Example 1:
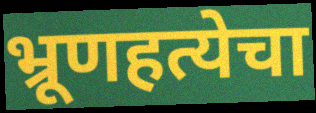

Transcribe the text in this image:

भ्रूणहत्येचा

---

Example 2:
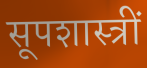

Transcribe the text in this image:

सूपशास्त्रीं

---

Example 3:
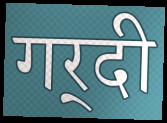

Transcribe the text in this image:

गर्दी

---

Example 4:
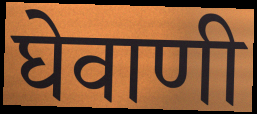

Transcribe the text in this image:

घेवाणी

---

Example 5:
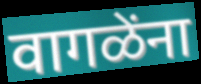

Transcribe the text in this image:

वागळेंना